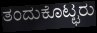
ತಂದುಕೊಟ್ಟರು